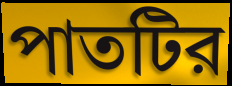
পাতটির